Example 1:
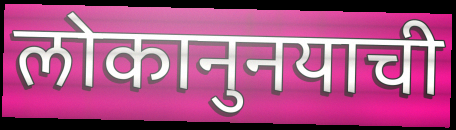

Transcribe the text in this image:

लोकानुनयाची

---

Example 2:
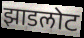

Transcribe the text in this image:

झाडलोट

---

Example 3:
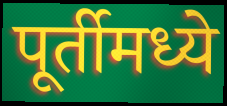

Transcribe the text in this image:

पूर्तीमध्ये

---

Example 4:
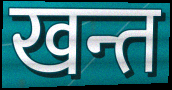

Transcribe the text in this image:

खन्त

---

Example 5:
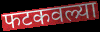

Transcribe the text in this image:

फटकवल्या